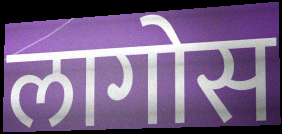
लागोस